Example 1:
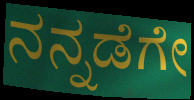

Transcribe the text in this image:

ನನ್ನಡೆಗೇ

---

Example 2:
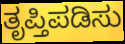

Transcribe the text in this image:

ತೃಪ್ತಿಪಡಿಸು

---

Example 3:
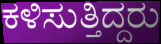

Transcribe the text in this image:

ಕಳಿಸುತ್ತಿದ್ದರು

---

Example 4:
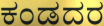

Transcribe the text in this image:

ಕಂಡದರ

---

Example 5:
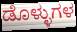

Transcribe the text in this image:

ಡೊಳ್ಳುಗಳ